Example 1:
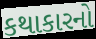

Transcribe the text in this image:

કથાકારનો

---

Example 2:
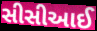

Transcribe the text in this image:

સીસીઆઈ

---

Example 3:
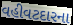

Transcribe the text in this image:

વહીવટદારના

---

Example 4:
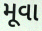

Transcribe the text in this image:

મૂવા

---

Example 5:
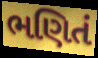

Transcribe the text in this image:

ભણિતં